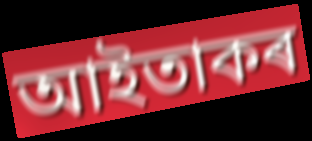
আইতাকৰ